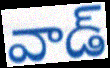
వాడ్